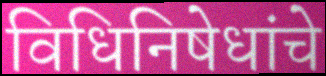
विधिनिषेधांचे